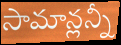
సామాన్లన్నీ